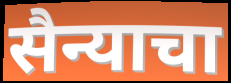
सैन्याचा